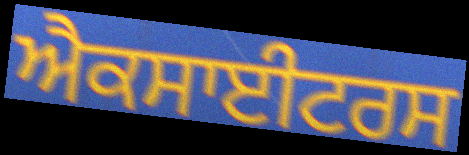
ਐਕਸਾਈਟਰਸ